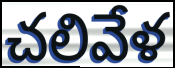
చలివేళ